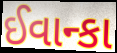
ઈવાન્કા